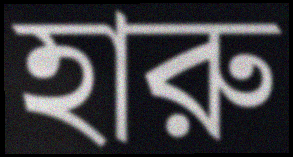
হারু